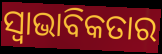
ସ୍ଵାଭାବିକତାର